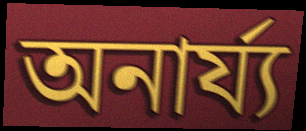
অনাৰ্য্য